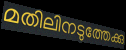
മതിലിനടുത്തേക്കു